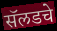
सॅलडचे